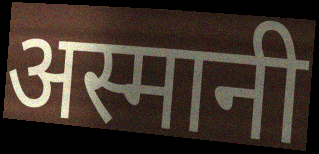
अस्मानी